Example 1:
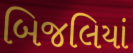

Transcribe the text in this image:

બિજલિયાં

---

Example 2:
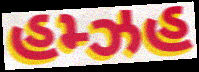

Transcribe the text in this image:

હમ્ઝહ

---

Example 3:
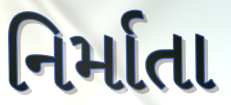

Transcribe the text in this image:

નિર્માતા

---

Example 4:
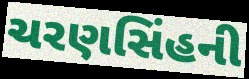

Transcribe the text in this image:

ચરણસિંહની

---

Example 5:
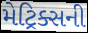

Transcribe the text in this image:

મેટ્રિક્સની